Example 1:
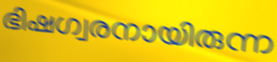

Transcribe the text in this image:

ഭിഷഗ്വരനായിരുന്ന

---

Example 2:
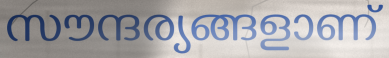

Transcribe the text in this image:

സൗന്ദര്യങ്ങളാണ്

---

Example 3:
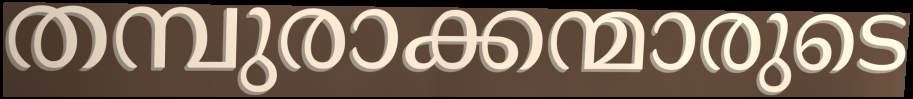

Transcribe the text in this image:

തമ്പുരാക്കന്മാരുടെ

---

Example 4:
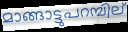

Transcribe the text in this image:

മാങ്ങാട്ടുപറമ്പില്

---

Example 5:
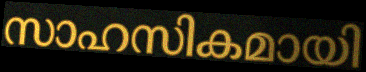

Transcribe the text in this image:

സാഹസികമായി